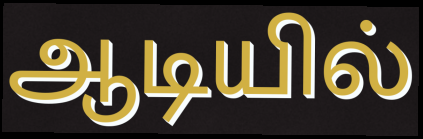
ஆடியில்